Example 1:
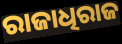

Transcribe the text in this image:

ରାଜାଧିରାଜ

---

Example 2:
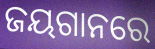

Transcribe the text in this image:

ଜୟଗାନରେ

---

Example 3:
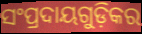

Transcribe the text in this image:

ସଂପ୍ରଦାୟଗୁଡ଼ିକର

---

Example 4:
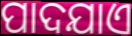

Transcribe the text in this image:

ପାଦଯାଏ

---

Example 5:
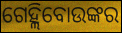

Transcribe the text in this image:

ଗେହ୍ଲିବୋଉଙ୍କର